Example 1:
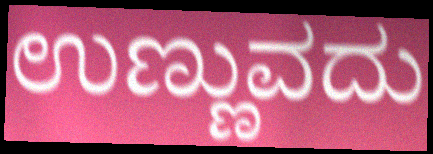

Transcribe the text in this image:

ಉಣ್ಣುವದು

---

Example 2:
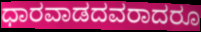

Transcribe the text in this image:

ಧಾರವಾಡದವರಾದರೂ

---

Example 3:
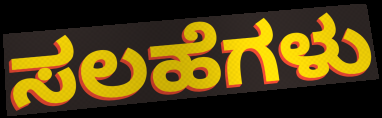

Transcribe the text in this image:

ಸಲಹೆಗಳು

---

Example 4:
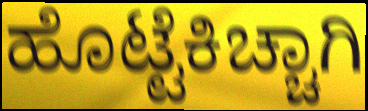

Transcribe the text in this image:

ಹೊಟ್ಟೆಕಿಚ್ಚಾಗಿ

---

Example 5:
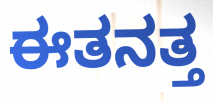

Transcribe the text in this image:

ಈತನತ್ತ